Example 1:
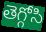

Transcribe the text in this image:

తెగ్గోసి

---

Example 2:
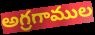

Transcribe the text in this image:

అగ్రగాముల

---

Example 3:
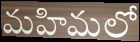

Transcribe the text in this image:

మహిమలో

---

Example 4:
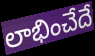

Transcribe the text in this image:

లాభించేదే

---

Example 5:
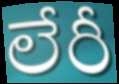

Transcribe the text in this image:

లేరీ